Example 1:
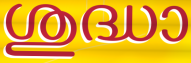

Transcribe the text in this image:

ശുദ്ധാ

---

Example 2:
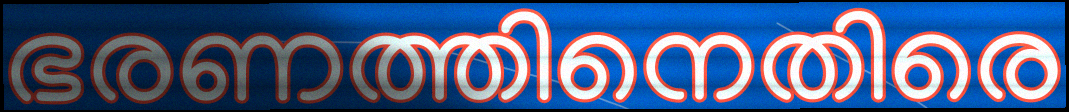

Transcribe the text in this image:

ഭരണത്തിനെതിരെ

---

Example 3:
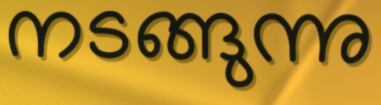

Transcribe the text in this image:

നടങ്ങുന്നു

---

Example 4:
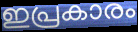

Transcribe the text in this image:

ഇപ്രകാരം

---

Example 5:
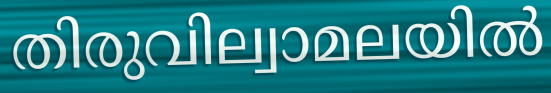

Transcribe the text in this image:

തിരുവില്വാമലയിൽ